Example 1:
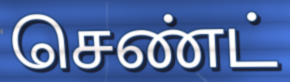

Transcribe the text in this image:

செண்ட்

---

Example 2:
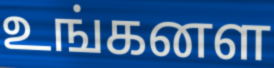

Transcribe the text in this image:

உங்கனள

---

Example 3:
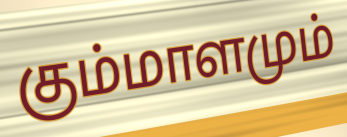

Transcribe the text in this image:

கும்மாளமும்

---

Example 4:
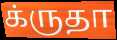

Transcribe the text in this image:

க்ருதா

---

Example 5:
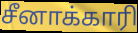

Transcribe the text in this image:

சீனாக்காரி